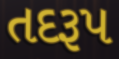
તદરૂપ